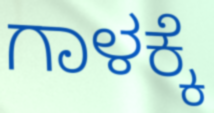
ಗಾಳಕ್ಕೆ